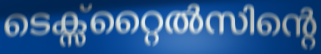
ടെക്സ്റ്റൈൽസിന്റെ